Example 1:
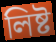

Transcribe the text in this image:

লিষ্ট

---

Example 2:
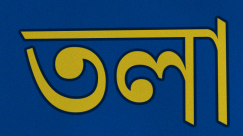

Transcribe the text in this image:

তলা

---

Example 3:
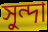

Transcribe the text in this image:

সুন্দা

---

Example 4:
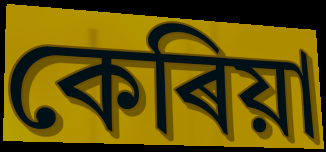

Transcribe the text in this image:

কেৰিয়া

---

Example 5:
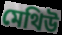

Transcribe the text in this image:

মেথিউ